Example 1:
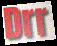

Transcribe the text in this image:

Drr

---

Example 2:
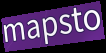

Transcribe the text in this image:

mapsto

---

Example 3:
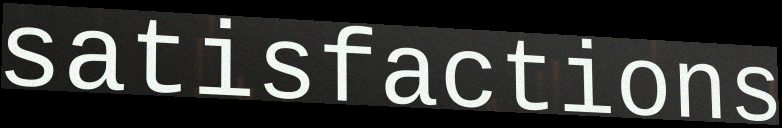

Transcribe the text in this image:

satisfactions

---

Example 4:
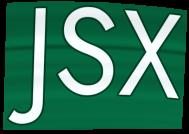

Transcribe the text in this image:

JSX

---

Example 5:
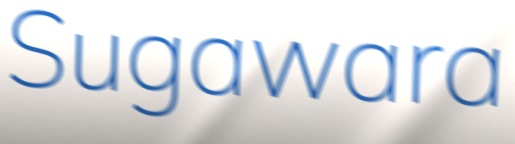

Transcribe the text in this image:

Sugawara